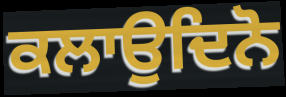
ਕਲਾਉਦਿਨੋ